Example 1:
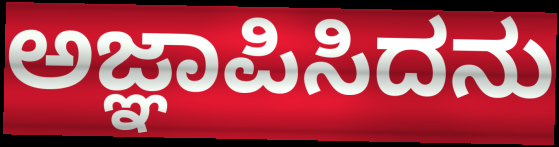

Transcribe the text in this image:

ಅಜ್ಞಾಪಿಸಿದನು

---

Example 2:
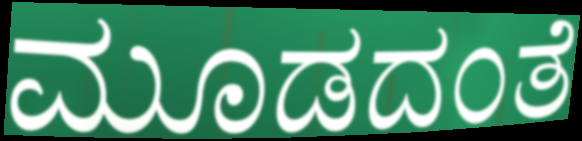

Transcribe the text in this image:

ಮೂಡದಂತೆ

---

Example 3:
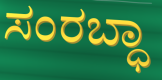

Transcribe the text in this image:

ಸಂರಬ್ಧಾ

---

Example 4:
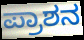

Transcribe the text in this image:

ಪ್ರಾಶನ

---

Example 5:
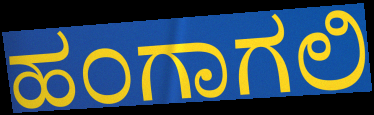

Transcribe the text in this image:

ಹಂಗಾಗಲಿ